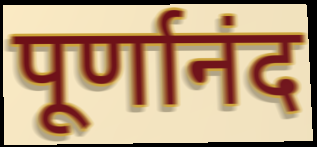
पूर्णानंद